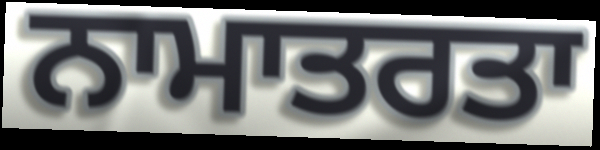
ਨਾਮਾਤਰਤਾ